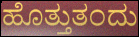
ಹೊತ್ತುತಂದು